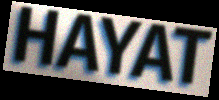
HAYAT